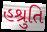
હશ્રુતિ